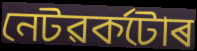
নেটৱৰ্কটোৰ